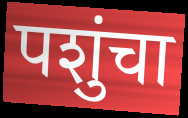
पशुंचा